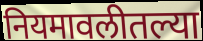
नियमावलीतल्या